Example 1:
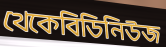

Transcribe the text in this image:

থেকেবিডিনিউজ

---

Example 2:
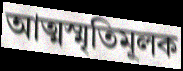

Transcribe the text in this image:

আত্মস্মৃতিমূলক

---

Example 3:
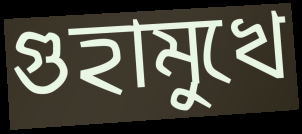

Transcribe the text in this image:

গুহামুখে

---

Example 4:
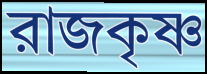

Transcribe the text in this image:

রাজকৃষ্ণ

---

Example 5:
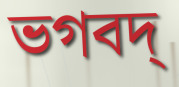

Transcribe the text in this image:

ভগবদ্